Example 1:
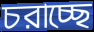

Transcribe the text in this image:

চরাচ্ছে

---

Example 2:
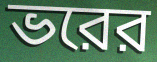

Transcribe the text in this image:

ভরের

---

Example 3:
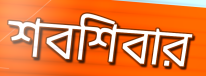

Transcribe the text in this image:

শবশিবার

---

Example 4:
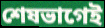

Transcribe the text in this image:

শেষভাগেই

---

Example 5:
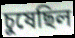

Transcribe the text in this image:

চুষেছিল